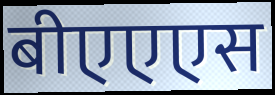
बीएएएस